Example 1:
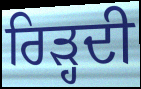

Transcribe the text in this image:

ਰਿੜ੍ਹਦੀ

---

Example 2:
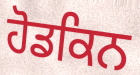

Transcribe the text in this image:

ਹੋਡਕਿਨ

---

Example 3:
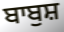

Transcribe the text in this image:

ਬਾਬੁਸ਼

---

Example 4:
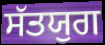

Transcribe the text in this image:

ਸੱਤਯੁਗ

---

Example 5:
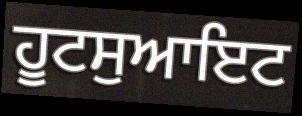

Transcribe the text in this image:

ਹੂਟਸੁਆਇਟ